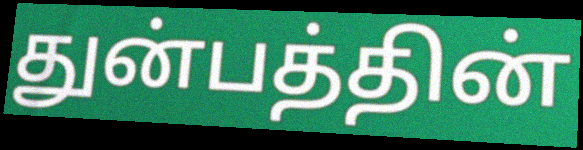
துன்பத்தின்